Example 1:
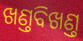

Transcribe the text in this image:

ଖଣ୍ତବିଖଣ୍ତ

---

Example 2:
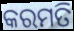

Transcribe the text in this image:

କରମତି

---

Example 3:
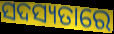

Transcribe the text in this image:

ସଦସ୍ୟତାରେ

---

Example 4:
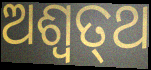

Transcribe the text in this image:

ଅଶ୍ଵତ୍‍ଥ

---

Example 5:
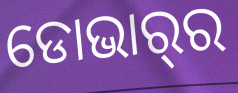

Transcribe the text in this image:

ଡୋଭାର୍‌ର